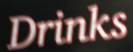
Drinks